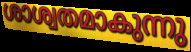
ശാശ്വതമാകുന്നു